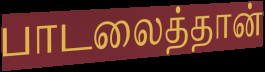
பாடலைத்தான்